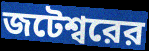
জটেশ্বরের